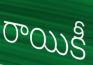
రాయికీ